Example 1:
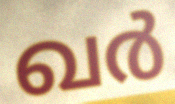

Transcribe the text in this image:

ഖർ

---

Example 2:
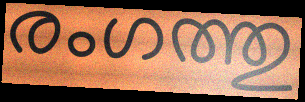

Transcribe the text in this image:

രംഗത്തു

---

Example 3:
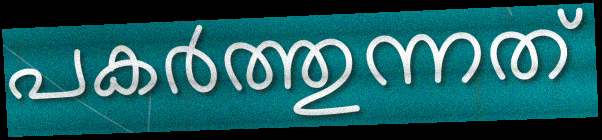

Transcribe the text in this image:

പകർത്തുന്നത്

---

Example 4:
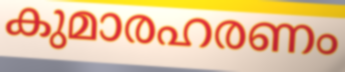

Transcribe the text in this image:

കുമാരഹരണം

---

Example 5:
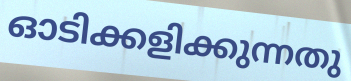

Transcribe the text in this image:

ഓടിക്കളിക്കുന്നതു